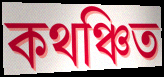
কথঞ্চিত